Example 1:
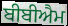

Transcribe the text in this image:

ਬੀਬੀਐਮ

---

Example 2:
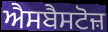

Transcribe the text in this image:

ਐਸਬੈਸਟੋਜ਼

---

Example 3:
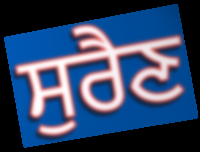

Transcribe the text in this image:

ਸੁਰੈਣ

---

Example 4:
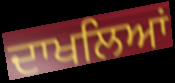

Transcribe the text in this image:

ਦਾਖਲਿਆਂ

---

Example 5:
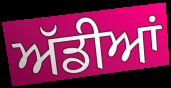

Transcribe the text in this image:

ਅੱਡੀਆਂ